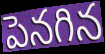
పెనగిన